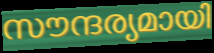
സൗന്ദര്യമായി